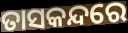
ତାସକନ୍ଦରେ